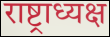
राष्ट्राध्यक्ष